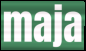
maja